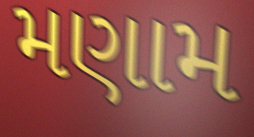
મણામ